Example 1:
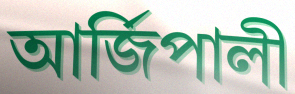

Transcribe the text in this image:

আৰ্জিপালী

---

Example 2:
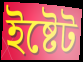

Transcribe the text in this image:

ইষ্টেট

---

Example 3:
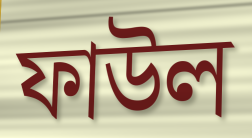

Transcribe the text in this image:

ফাউল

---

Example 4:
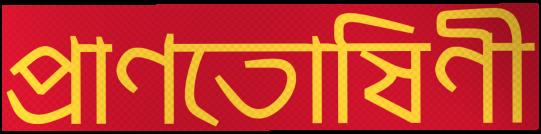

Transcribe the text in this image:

প্ৰাণতোষিণী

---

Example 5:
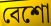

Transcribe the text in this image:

বেশো